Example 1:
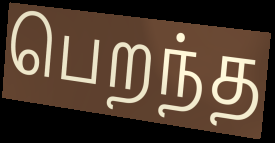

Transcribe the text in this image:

பெறந்த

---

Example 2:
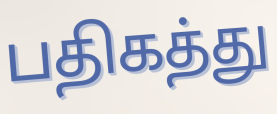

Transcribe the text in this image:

பதிகத்து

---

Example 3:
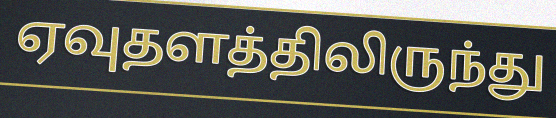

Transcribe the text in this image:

ஏவுதளத்திலிருந்து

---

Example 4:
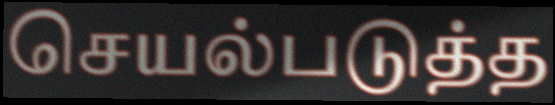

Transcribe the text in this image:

செயல்படுத்த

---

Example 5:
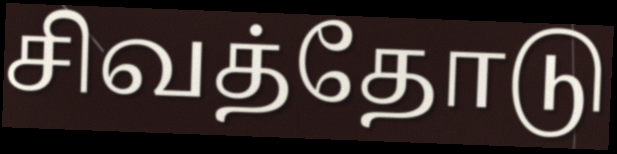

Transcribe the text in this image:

சிவத்தோடு